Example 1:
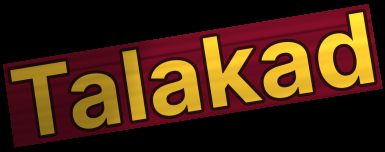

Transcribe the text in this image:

Talakad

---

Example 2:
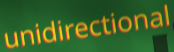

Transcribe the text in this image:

unidirectional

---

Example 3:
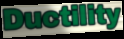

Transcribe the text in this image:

Ductility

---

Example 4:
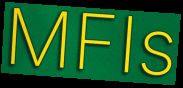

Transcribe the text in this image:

MFIs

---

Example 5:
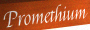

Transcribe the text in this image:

Promethium